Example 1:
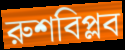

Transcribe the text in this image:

রুশবিপ্লব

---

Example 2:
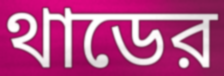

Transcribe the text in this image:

থাডের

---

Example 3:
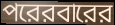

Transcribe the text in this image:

পরেরবারের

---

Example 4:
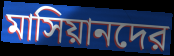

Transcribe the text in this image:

মাসিয়ানদের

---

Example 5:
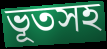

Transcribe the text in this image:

ভূতসহ